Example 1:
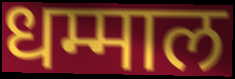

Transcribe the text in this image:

धम्माल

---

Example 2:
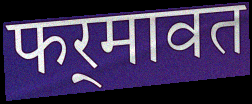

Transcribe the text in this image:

फर्मावत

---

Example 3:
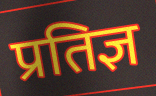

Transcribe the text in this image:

प्रतिज्ञ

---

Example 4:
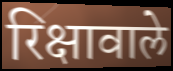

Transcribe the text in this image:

रिक्षावाले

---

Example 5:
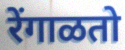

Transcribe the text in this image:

रेंगाळतो